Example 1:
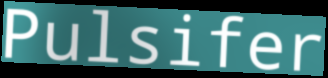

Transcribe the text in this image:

Pulsifer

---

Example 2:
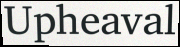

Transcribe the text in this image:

Upheaval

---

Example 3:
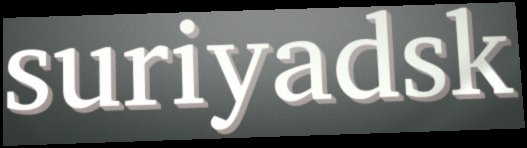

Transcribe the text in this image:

suriyadsk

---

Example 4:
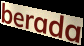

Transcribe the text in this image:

berada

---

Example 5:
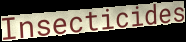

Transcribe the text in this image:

Insecticides